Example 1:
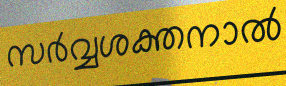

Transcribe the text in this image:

സർവ്വശക്തനാൽ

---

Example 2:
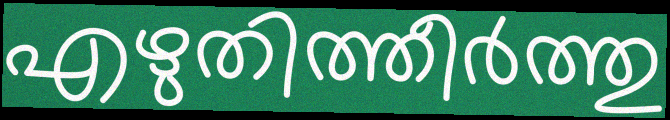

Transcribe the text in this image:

എഴുതിത്തീർത്തു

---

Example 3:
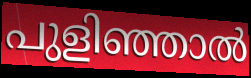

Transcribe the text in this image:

പുളിഞ്ഞാൽ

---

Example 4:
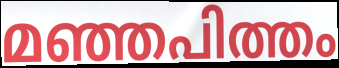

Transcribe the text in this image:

മഞ്ഞപിത്തം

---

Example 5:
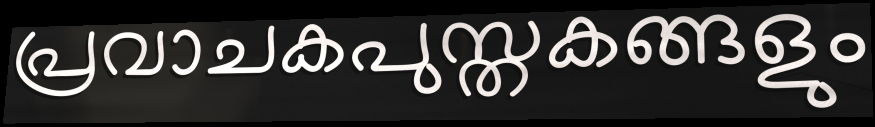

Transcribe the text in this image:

പ്രവാചകപുസ്തകങ്ങളും